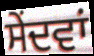
ਸੇਂਦਵਾਂ